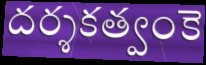
దర్శకత్వంకె